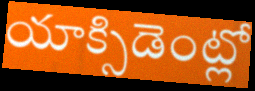
యాక్సిడెంట్లో